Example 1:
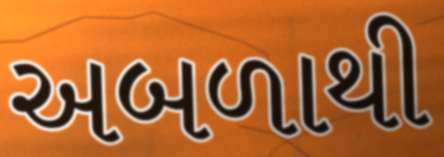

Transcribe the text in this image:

અબળાથી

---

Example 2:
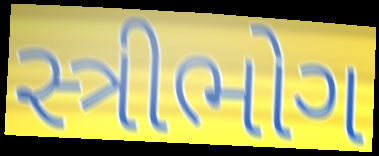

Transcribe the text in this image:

સ્ત્રીભોગ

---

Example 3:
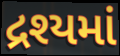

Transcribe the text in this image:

દ્રશ્યમાં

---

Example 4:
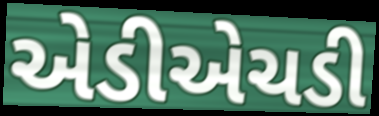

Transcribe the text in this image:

એડીએચડી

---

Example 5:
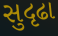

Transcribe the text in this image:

સુદૃઢા